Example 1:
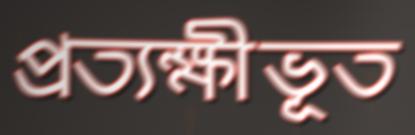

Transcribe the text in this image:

প্রত্যক্ষীভূত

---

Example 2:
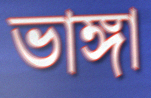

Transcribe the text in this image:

ভাঙ্গা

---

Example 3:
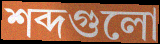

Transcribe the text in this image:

শব্দগুলো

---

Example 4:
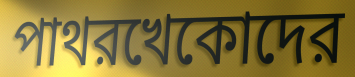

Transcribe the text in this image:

পাথরখেকোদের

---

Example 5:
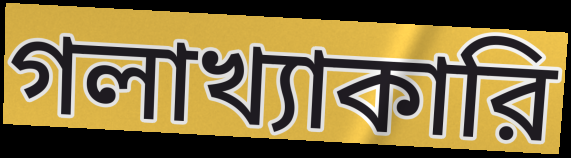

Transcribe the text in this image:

গলাখ্যাকারি